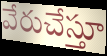
వేరుచేస్తూ